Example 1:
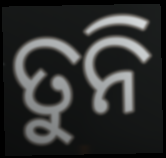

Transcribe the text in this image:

ତୁନି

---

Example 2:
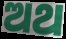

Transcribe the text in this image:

ଅଥ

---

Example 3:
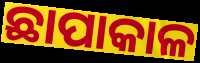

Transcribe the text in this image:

ଛାପାକାଳ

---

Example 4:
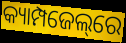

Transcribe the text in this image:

କ୍ୟାମ୍ପଜେଲ୍‌ରେ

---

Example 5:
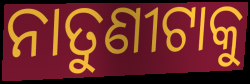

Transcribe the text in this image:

ନାତୁଣୀଟାକୁ